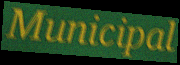
Municipal